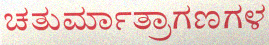
ಚತುರ್ಮಾತ್ರಾಗಣಗಳ